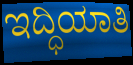
ಇದ್ಧಿಯಾತಿ